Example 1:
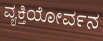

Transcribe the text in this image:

ವ್ಯಕ್ತಿಯೋರ್ವನ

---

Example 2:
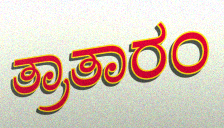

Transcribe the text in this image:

ತ್ರಾತಾರಂ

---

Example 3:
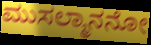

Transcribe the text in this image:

ಮುಸಲ್ಮಾನನೋ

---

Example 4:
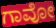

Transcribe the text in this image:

ಗಾವೋ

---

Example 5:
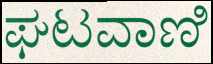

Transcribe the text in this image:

ಘಟವಾಣಿ